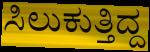
ಸಿಲುಕುತ್ತಿದ್ದ